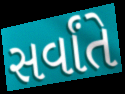
સર્વાંતે